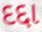
દદ્દા